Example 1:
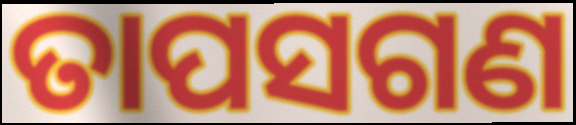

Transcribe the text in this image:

ତାପସଗଣ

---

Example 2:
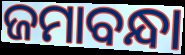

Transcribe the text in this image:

ଜମାବନ୍ଧା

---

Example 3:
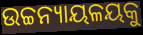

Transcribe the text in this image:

ଉଚ୍ଚନ୍ୟାୟଳୟକୁ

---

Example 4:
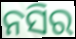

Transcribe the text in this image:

ନସିର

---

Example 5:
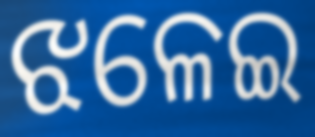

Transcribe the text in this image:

ଝଳେଇ